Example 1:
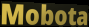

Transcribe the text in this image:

Mobota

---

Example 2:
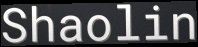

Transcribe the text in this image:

Shaolin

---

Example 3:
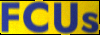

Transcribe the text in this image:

FCUs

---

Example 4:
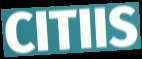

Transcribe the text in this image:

CITIIS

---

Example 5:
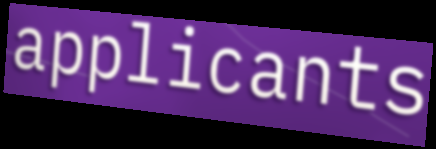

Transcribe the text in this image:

applicants